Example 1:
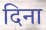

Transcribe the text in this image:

दिना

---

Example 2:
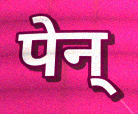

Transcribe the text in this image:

पेन्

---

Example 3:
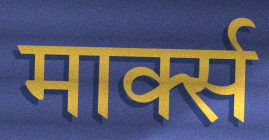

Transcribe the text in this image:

मार्क्स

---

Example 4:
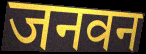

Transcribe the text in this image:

जनवन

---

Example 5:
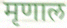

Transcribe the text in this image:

मृणाल